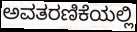
ಅವತರಣಿಕೆಯಲ್ಲಿ